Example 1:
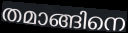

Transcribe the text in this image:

തമാങ്ങിനെ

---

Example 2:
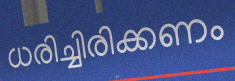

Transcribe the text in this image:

ധരിച്ചിരിക്കണം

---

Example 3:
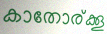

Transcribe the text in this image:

കാതോര്ക്കൂ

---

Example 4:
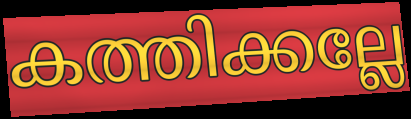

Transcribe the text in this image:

കത്തിക്കല്ലേ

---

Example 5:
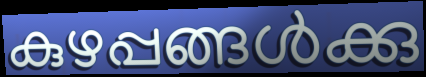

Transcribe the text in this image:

കുഴപ്പങ്ങൾക്കു